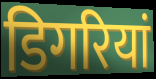
डिगरियां